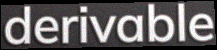
derivable